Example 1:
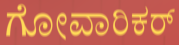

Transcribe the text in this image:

ಗೋವಾರಿಕರ್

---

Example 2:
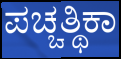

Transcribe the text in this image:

ಪಚ್ಚತ್ಥಿಕಾ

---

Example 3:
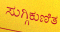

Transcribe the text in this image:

ಸುಗ್ಗಿಕುಣಿತ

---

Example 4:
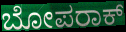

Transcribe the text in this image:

ಬೋಪರಾಕ್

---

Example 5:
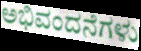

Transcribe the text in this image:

ಅಭಿವಂದನೆಗಳು